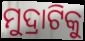
ମୁଦ୍ରାଟିକୁ